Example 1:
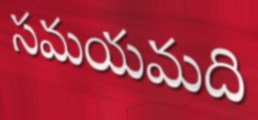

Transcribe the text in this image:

సమయమది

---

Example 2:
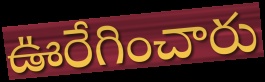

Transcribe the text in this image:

ఊరేగించారు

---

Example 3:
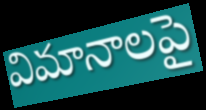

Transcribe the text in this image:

విమానాలపై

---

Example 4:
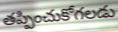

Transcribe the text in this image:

తప్పించుకోగలడు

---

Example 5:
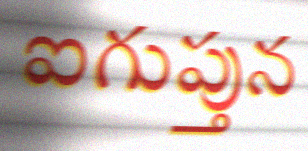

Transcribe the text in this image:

ఐగుప్తున